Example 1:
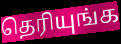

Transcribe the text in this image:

தெரியுங்க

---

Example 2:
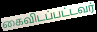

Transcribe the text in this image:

கைவிடப்பட்டவர்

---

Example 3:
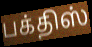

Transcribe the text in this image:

பக்திஸ்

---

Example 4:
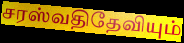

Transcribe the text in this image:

சரஸ்வதிதேவியும்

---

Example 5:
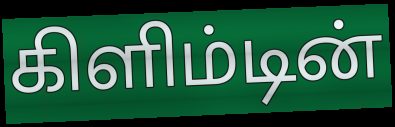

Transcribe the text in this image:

கிளிம்டின்